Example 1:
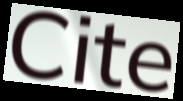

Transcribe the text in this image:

Cite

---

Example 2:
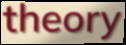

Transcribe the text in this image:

theory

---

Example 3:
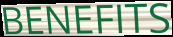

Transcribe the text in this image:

BENEFITS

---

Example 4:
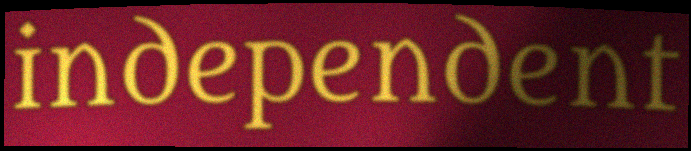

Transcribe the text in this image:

independent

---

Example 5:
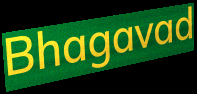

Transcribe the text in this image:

Bhagavad